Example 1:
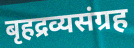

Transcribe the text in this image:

बृहद्रव्यसंग्रह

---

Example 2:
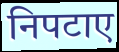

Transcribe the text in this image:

निपटाए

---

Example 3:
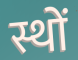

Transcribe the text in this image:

स्थों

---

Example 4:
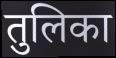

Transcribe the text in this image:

तुलिका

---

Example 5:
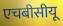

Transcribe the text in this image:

एचबीसीयू